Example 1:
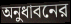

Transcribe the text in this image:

অনুধাবনের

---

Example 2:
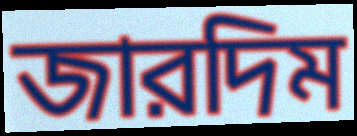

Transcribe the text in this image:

জারদিম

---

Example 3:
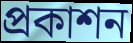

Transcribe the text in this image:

প্রকাশন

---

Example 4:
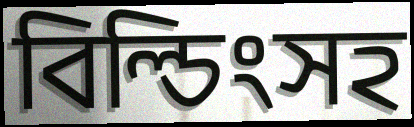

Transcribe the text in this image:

বিল্ডিংসহ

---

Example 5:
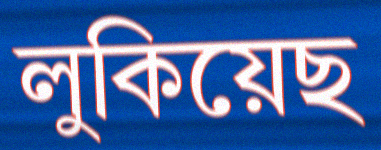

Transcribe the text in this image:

লুকিয়েছ